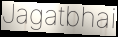
Jagatbhai